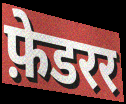
फ़ेडरर